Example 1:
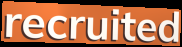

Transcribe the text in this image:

recruited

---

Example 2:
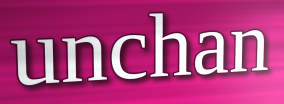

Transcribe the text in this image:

unchan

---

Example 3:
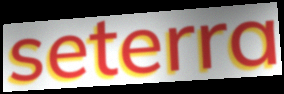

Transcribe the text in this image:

seterra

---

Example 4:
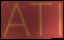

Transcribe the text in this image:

ATI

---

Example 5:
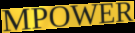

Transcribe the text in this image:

MPOWER